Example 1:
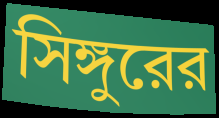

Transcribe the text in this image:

সিঙ্গুরের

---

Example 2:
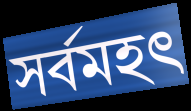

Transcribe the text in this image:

সর্বমহৎ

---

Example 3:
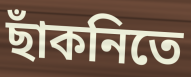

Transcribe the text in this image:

ছাঁকনিতে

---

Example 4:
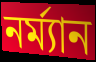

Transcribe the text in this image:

নর্ম্যান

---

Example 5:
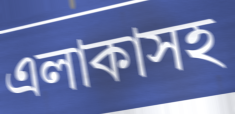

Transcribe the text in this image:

এলাকাসহ